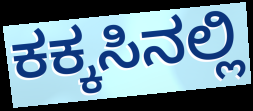
ಕಕ್ಕಸಿನಲ್ಲಿ